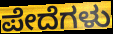
ಪೇದೆಗಳು